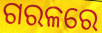
ଗରଳରେ